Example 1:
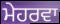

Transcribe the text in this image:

ਮੇਹਰਵਾ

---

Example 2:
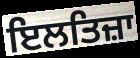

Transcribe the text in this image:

ਇਲਤਿਜ਼ਾ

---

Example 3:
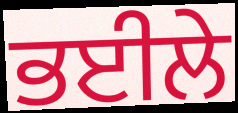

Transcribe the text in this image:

ਭਈਲੇ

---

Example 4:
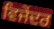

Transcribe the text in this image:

ਵਿਜੇਂਦਰ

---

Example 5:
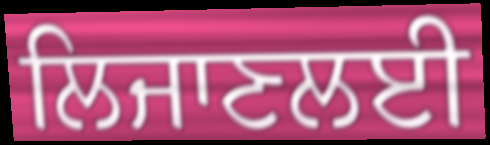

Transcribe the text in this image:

ਲਿਜਾਣਲਈ